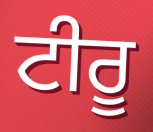
ਟੀਰੂ